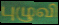
புழுவி